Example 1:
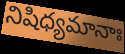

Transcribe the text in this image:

నిషిధ్యమానాః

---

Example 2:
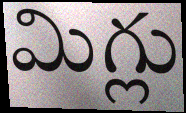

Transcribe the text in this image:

మిగ్లు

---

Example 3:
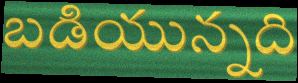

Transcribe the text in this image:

బడియున్నది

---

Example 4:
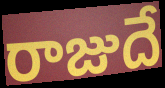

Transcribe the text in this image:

రాజుదే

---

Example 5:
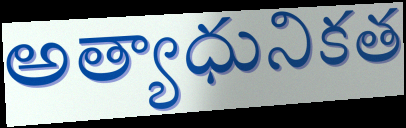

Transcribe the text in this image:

అత్యాధునికత